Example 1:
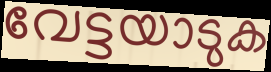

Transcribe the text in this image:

വേട്ടയാടുക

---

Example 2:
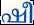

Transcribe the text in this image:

ഷീ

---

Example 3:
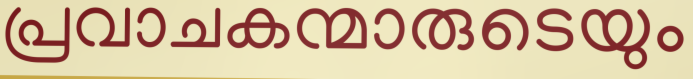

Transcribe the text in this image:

പ്രവാചകന്മാരുടെയും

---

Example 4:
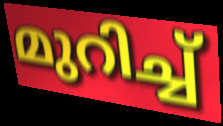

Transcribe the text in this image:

മുറിച്ച്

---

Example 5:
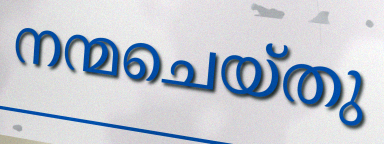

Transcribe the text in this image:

നന്മചെയ്തു